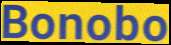
Bonobo